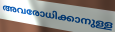
അവരോധിക്കാനുള്ള